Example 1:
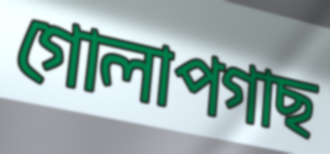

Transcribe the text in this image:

গোলাপগাছ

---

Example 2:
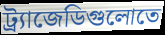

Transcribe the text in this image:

ট্র্যাজেডিগুলোতে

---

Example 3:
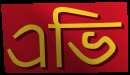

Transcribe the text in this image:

এভি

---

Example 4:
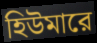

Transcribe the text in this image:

হিউমারে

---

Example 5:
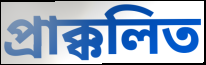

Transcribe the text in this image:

প্রাক্কলিত